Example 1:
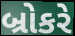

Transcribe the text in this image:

બ્રોકરે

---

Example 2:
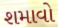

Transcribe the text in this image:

શમાવો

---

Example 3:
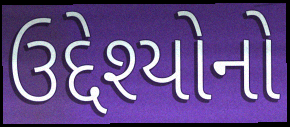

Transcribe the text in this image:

ઉદ્દેશ્યોનો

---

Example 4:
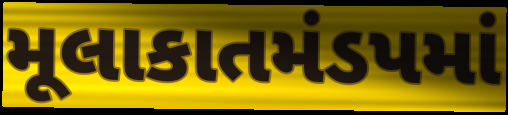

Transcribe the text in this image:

મૂલાકાતમંડપમાં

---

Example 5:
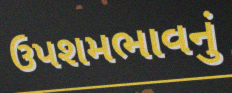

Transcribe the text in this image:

ઉપશમભાવનું